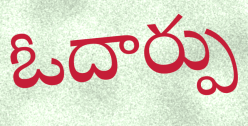
ఓదార్పు